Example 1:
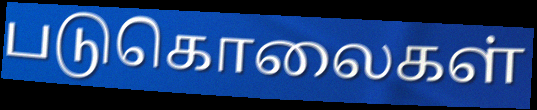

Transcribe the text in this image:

படுகொலைகள்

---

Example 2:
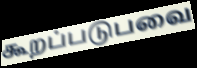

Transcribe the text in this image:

கூறப்படுபவை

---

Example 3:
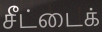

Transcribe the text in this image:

சீட்டைக்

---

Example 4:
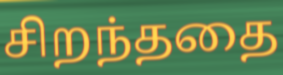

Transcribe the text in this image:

சிறந்ததை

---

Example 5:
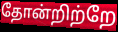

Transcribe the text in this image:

தோன்றிற்றே